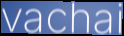
vachai